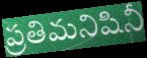
ప్రతిమనిషినీ